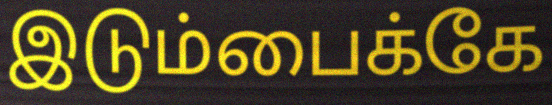
இடும்பைக்கே